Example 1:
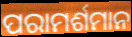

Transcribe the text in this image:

ପରାମର୍ଶମାନ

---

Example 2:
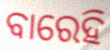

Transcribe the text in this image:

ବାରେହି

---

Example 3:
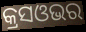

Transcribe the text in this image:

କ୍ରସଓଭର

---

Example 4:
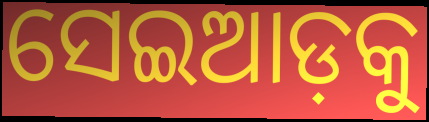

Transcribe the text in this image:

ସେଇଆଡ଼କୁ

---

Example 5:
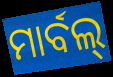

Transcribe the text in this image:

ମାର୍ବଲ୍